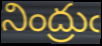
నింద్రుఁ